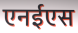
एनईएस